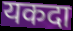
यकदा